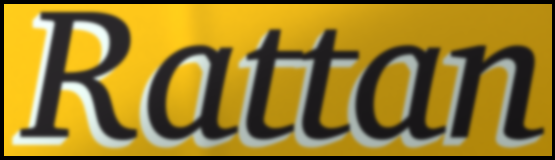
Rattan